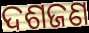
ଦଶଜଣ